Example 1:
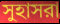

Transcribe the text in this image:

সুহাসরা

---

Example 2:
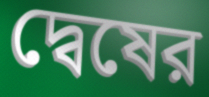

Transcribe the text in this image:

দ্বেষের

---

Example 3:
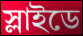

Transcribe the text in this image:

স্লাইডে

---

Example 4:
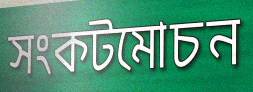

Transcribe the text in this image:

সংকটমোচন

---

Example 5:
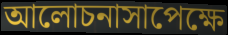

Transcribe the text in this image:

আলোচনাসাপেক্ষে